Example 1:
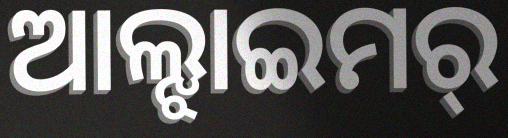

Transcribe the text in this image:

ଆଲ୍ଝାଇମର୍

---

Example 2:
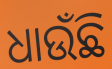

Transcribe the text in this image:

ଧାଉଁଛି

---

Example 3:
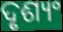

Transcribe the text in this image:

ଦୃଶ୍ୟଂ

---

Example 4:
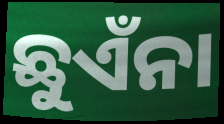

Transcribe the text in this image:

ଛୁଏଁନା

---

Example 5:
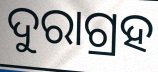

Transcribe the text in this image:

ଦୁରାଗ୍ରହ